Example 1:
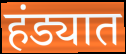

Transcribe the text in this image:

हंड्यात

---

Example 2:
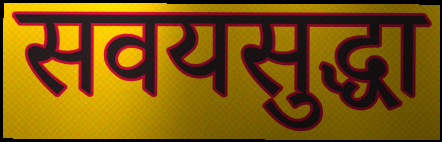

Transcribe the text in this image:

सवयसुद्धा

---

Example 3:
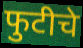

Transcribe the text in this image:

फुटीचे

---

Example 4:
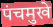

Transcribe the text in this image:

पंचमुखे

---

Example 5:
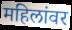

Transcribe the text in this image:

महिलांवर